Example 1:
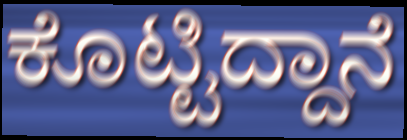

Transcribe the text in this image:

ಕೊಟ್ಟಿದ್ದಾನೆ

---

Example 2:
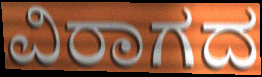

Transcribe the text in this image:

ವಿರಾಗದ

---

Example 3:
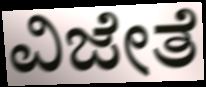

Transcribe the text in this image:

ವಿಜೇತೆ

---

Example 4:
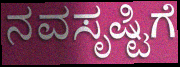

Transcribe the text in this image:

ನವಸೃಷ್ಟಿಗೆ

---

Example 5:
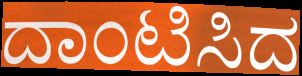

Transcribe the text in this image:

ದಾಂಟಿಸಿದ